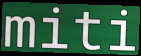
miti